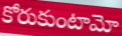
కోరుకుంటామో